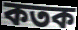
কতক